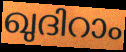
ഖുദിറാം